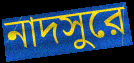
নাদসুরে